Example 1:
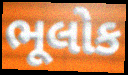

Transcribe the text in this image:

ભૂલોક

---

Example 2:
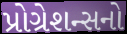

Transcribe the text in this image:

પ્રોગ્રેશન્સનો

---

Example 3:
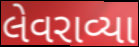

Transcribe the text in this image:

લેવરાવ્યા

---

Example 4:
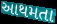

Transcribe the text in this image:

આથમતા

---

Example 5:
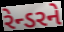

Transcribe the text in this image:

રેન્ડરને